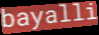
bayalli